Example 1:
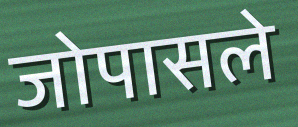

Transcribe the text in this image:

जोपासले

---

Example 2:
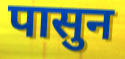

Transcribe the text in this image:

पासुन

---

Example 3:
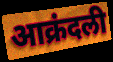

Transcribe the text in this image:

आक्रंदली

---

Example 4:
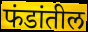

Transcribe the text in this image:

फंडांतील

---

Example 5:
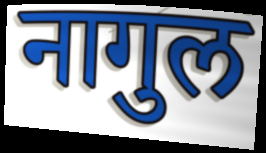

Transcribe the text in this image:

नागुल